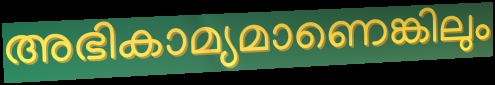
അഭികാമ്യമാണെങ്കിലും